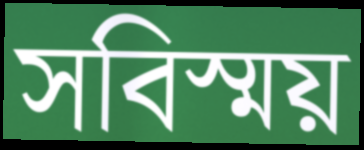
সবিস্ময়